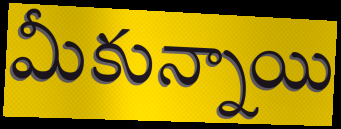
మీకున్నాయి